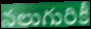
నలుగురికీ